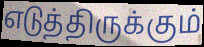
எடுத்திருக்கும்